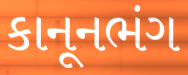
કાનૂનભંગ